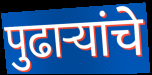
पुढाऱ्यांचे